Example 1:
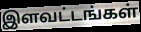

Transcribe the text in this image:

இளவட்டங்கள்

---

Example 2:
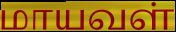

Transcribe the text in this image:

மாயவள்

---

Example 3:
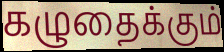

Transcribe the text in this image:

கழுதைக்கும்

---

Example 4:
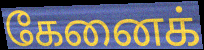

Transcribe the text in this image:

கேனைக்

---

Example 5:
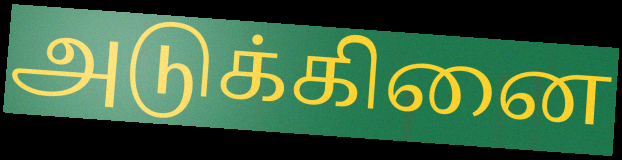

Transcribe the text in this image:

அடுக்கினை